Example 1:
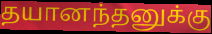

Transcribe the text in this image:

தயானந்தனுக்கு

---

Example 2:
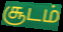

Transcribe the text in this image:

சூடம்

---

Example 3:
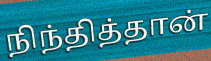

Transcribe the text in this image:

நிந்தித்தான்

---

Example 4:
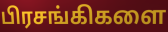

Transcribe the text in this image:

பிரசங்கிகளை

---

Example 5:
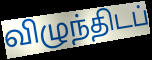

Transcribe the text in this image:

விழுந்திடப்